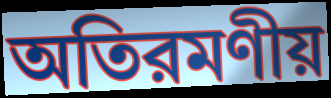
অতিরমণীয়